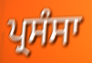
ਪ੍ਰਸੰਸਾ